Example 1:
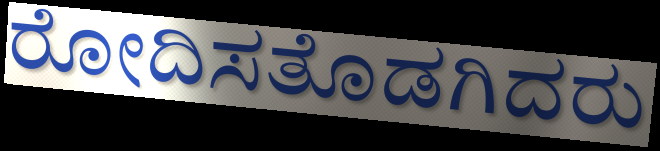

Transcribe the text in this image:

ರೋದಿಸತೊಡಗಿದರು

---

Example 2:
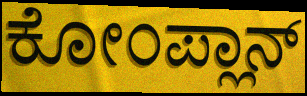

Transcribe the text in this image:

ಕೋಂಪ್ಲಾನ್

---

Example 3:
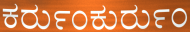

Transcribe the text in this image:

ಕರ್ರುಂಕುರ್ರುಂ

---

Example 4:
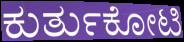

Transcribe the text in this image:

ಕುರ್ತುಕೋಟಿ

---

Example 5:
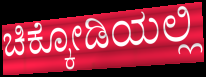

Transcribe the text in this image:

ಚಿಕ್ಕೋಡಿಯಲ್ಲಿ